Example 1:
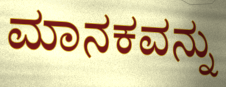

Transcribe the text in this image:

ಮಾನಕವನ್ನು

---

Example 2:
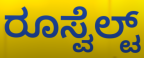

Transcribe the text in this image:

ರೂಸ್ವೆಲ್ಟ್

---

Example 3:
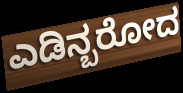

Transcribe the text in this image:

ಎಡಿನ್ಬರೋದ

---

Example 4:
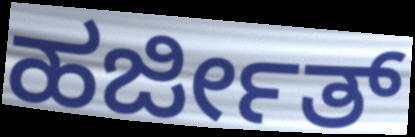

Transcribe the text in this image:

ಹರ್ಜೀತ್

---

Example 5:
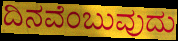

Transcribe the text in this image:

ದಿನವೆಂಬುವುದು